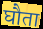
घौता